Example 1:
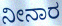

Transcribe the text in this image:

ನೀನಾರ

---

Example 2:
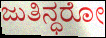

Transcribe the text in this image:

ಜುತಿನ್ಧರೋ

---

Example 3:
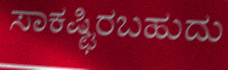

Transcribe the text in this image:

ಸಾಕಷ್ಟಿರಬಹುದು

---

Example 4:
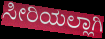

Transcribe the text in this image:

ಸೀರಿಯಲ್ಲಾಗಿ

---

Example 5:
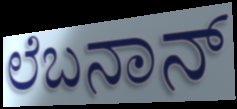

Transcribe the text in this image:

ಲೆಬನಾನ್